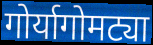
गोर्यागोमट्या